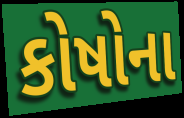
કોષોના